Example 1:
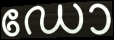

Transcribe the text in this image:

ഡോ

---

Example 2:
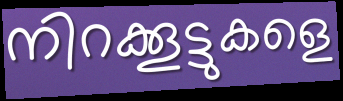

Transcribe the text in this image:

നിറക്കൂട്ടുകളെ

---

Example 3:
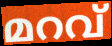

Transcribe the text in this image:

മറവ്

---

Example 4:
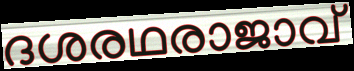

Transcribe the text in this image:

ദശരഥരാജാവ്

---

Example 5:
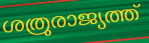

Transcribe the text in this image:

ശത്രുരാജ്യത്ത്